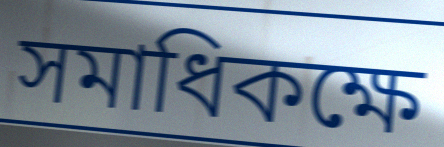
সমাধিকক্ষে